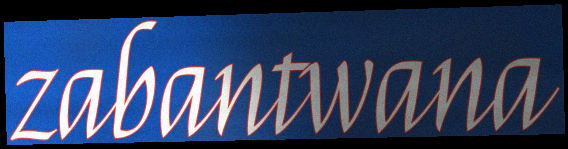
zabantwana